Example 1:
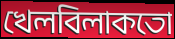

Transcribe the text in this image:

খেলবিলাকতো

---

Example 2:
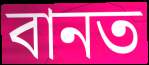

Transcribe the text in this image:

বানত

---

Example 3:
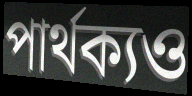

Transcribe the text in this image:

পাৰ্থক্যও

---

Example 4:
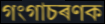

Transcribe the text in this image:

গংগাচৰণক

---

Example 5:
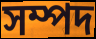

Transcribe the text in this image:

সম্পদ